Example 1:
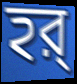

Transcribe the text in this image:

হর্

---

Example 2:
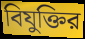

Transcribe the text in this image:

বিযুক্তির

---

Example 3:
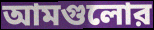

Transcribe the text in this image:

আমগুলোর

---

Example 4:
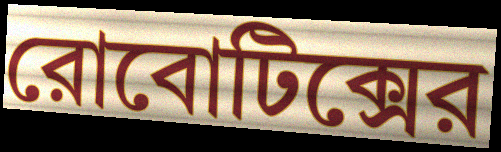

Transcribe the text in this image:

রোবোটিক্সের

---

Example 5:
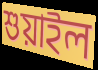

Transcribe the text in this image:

শুয়াইল